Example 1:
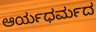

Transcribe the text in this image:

ಆರ್ಯಧರ್ಮದ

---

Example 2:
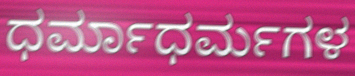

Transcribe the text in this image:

ಧರ್ಮಾಧರ್ಮಗಳ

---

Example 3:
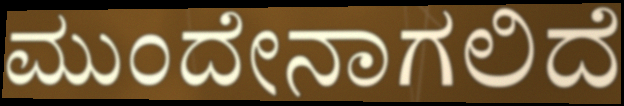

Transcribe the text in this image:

ಮುಂದೇನಾಗಲಿದೆ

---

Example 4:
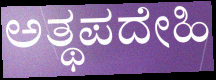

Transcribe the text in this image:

ಅತ್ಥಪದೇಹಿ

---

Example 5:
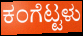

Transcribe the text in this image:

ಕಂಗೆಟ್ಟಳು